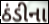
ઠંડીના